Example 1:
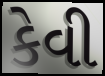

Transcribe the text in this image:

કેવી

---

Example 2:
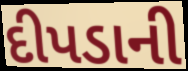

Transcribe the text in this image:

દીપડાની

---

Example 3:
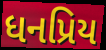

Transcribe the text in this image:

ધનપ્રિય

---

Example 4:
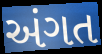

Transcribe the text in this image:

અંગત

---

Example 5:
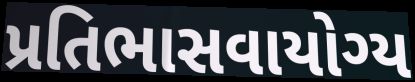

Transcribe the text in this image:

પ્રતિભાસવાયોગ્ય